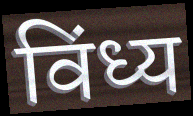
विंध्य